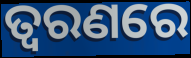
ତ୍ଵରଣରେ